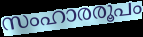
സംഹാരരൂപം